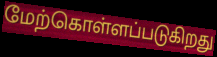
மேற்கொள்ளப்படுகிறது